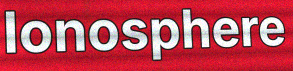
Ionosphere